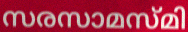
സരസാമസ്മി